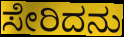
ಸೇರಿದನು